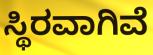
ಸ್ಥಿರವಾಗಿವೆ